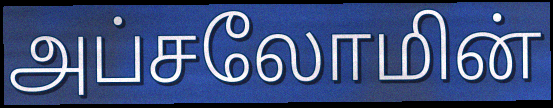
அப்சலோமின்